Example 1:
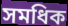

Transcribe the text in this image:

সমধিক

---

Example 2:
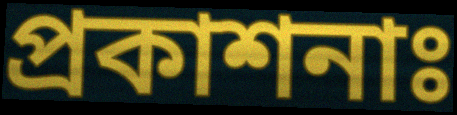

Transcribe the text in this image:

প্রকাশনাঃ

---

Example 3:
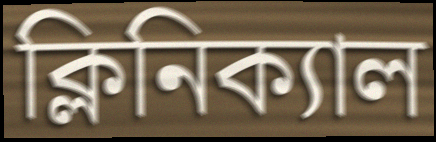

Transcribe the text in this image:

ক্লিনিক্যাল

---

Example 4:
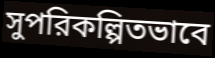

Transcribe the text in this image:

সুপরিকল্পিতভাবে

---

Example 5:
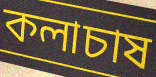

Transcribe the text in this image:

কলাচাষ